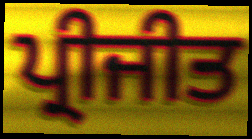
ਪ੍ਰੀਜੀਤ